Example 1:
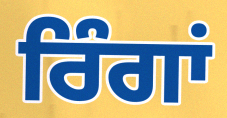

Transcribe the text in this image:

ਰਿੰਗਾਂ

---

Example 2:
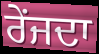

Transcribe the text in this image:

ਰੇਂਜਦਾ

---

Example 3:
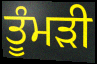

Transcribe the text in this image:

ਤੂੰਮੜੀ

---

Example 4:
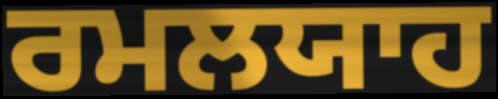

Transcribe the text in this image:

ਰਮਲਯਾਹ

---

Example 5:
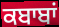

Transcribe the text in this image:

ਕਬਾਬਾਂ